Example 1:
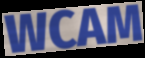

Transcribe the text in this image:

WCAM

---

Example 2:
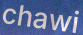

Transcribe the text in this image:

chawi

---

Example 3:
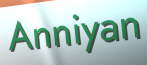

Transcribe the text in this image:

Anniyan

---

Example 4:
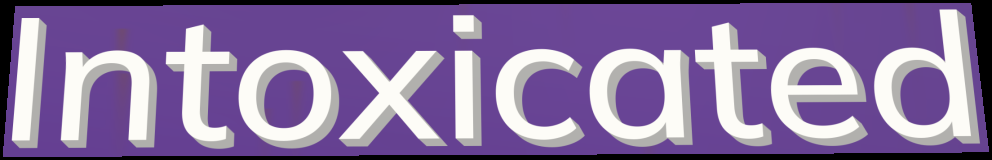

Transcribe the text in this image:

Intoxicated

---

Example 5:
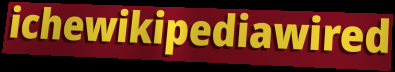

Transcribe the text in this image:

ichewikipediawired